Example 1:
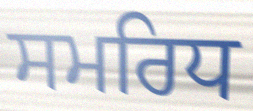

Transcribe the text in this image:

ਸਮਰਿਧ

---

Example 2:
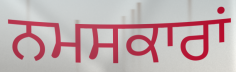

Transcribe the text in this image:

ਨਮਸਕਾਰਾਂ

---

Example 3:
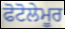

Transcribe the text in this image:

ਫੋਟੋਲੇਮੂਰ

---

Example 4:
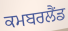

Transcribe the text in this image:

ਕਮਬਰਲੈਂਡ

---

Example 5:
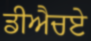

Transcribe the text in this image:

ਡੀਐਚਏ